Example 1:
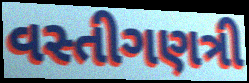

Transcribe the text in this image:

વસ્તીગણત્રી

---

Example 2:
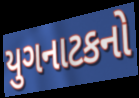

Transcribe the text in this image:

યુગનાટકનો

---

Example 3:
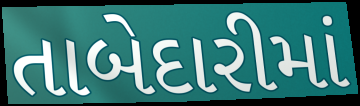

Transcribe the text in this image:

તાબેદારીમાં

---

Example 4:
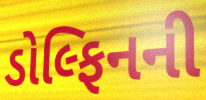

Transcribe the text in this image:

ડોલ્ફિનની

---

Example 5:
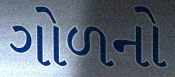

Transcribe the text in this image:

ગોળનો